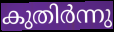
കുതിർന്നു